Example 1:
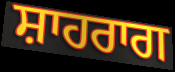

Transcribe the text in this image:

ਸ਼ਾਹਰਾਗ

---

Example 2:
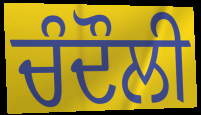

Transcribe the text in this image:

ਚੰਦੌਲੀ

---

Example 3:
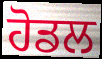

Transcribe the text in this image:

ਹੋਡਲ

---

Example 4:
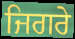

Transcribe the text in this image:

ਜਿਗਰੇ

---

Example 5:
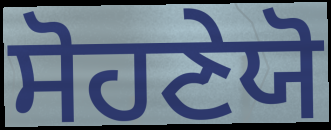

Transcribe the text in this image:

ਸੋਹਣੇਯੋ